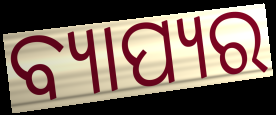
ବ୍ୟାପ୍ୟର